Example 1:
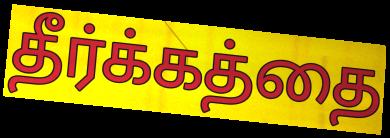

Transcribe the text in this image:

தீர்க்கத்தை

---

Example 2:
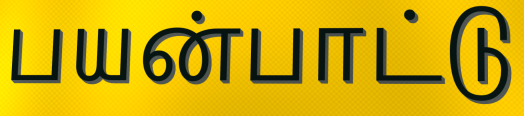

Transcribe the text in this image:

பயன்பாட்டு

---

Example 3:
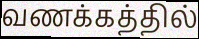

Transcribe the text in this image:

வணக்கத்தில்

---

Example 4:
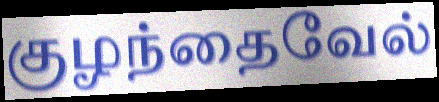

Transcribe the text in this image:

குழந்தைவேல்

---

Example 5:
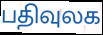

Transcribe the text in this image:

பதிவுலக